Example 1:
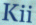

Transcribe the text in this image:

Kii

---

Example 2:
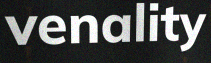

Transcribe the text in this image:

venality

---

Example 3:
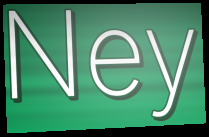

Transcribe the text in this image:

Ney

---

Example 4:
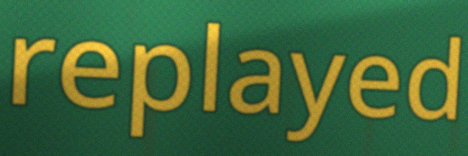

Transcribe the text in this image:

replayed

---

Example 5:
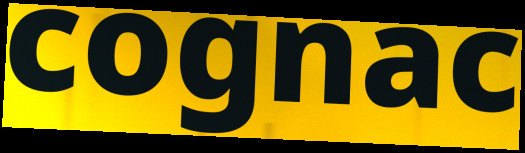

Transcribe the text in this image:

cognac